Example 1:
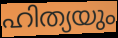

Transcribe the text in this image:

ഹിത്യയും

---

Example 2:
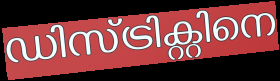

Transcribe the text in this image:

ഡിസ്ട്രിക്റ്റിനെ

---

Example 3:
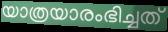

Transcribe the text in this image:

യാത്രയാരംഭിച്ചത്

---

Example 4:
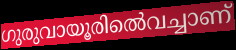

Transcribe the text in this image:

ഗുരുവായൂരിൽെവച്ചാണ്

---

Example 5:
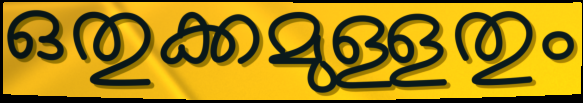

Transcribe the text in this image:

ഒതുക്കമുള്ളതും